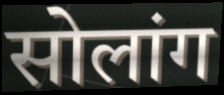
सोलांग